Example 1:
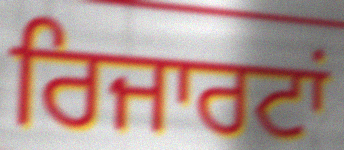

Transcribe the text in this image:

ਰਿਜਾਰਟਾਂ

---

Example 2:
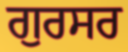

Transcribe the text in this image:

ਗੁਰਸਰ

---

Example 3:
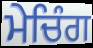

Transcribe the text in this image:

ਮੇਚਿੰਗ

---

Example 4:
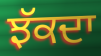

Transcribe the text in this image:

ਝੱਕਦਾ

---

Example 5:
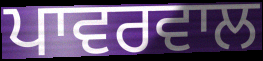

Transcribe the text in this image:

ਪਾਵਰਵਾਲ